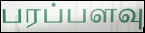
பரப்பளவு